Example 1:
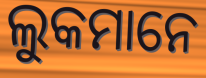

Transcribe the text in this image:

ଲୁକମାନେ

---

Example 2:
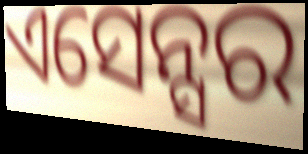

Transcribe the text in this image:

ଏସେନ୍ସର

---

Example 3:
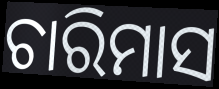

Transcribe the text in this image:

ଚାରିମାସ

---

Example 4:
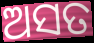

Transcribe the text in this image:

ଅସତ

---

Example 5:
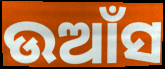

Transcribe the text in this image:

ଉଆଁସ